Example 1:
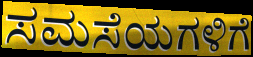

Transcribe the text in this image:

ಸಮಸೆಯಗಳಿಗೆ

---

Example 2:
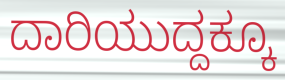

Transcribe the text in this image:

ದಾರಿಯುದ್ದಕ್ಕೂ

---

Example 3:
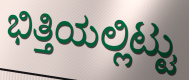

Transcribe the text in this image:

ಭಿತ್ತಿಯಲ್ಲಿಟ್ಟು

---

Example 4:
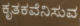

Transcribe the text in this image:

ಕೃತಕವೆನಿಸುವ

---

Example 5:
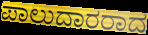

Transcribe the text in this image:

ಪಾಲುದಾರರಾದ